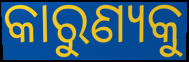
କାରୁଣ୍ୟକୁ